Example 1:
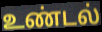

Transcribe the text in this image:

உண்டல்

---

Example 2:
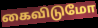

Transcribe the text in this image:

கைவிடுமோ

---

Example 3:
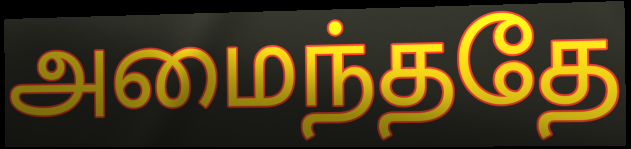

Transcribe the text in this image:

அமைந்ததே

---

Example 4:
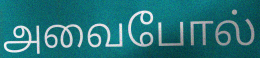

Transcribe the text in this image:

அவைபோல்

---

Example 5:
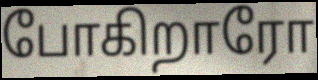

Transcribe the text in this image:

போகிறாரோ